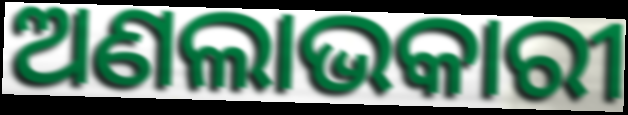
ଅଣଲାଭକାରୀ